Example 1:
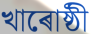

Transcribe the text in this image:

খাৰোষ্ঠী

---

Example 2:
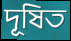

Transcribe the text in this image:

দূষিত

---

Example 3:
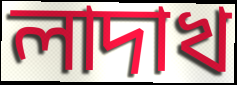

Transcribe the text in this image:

লাদাখ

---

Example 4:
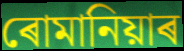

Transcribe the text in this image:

ৰোমানিয়াৰ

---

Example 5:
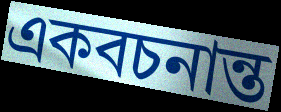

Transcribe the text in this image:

একবচনান্ত